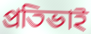
প্ৰতিভাই